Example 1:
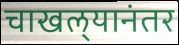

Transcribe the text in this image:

चाखल्यानंतर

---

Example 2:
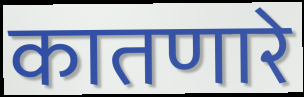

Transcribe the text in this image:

कातणारे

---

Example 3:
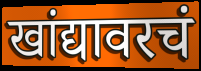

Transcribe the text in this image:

खांद्यावरचं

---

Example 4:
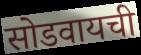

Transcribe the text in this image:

सोडवायची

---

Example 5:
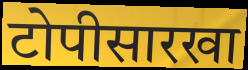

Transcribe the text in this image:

टोपीसारखा